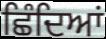
ਛਿੰਦਿਆਂ